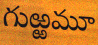
గుఱ్ఱమూ